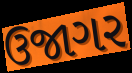
ઉજાગર